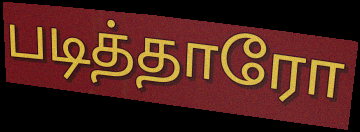
படித்தாரோ